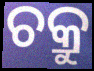
ଚକ୍ରୁ